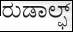
ರುಡಾಲ್ಫ್